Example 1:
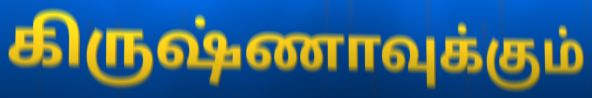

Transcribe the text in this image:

கிருஷ்ணாவுக்கும்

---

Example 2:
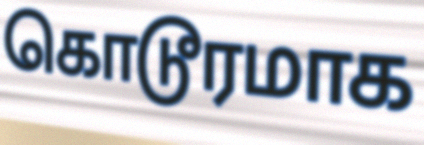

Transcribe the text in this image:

கொடூரமாக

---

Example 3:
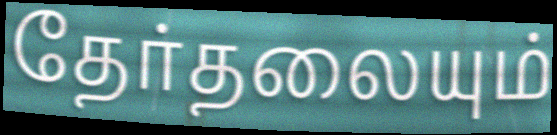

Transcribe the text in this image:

தேர்தலையும்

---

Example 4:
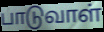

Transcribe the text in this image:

பாடுவாள்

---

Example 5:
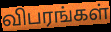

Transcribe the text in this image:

விபரங்கள்